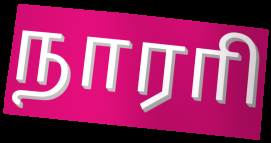
நாரரி